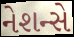
નેશન્સે